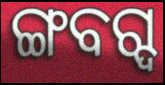
ଙ୍ଗବଗ୍ଦ